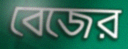
বেজের